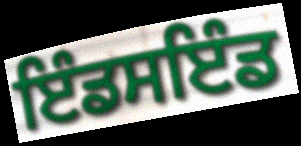
ਇੰਡਸਇੰਡ